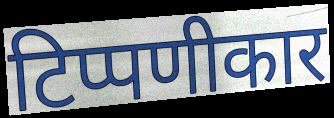
टिप्पणीकार